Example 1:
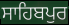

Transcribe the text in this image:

ਸਾਹਿਬਪੁਰ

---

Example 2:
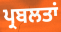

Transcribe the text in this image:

ਪ੍ਰਬਲਤਾਂ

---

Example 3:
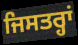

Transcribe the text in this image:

ਜਿਸਤਰ੍ਹਾਂ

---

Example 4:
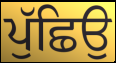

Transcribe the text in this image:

ਪੁੱਛਿਉ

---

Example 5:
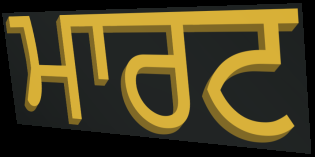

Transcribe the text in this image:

ਮਾਰਟ